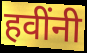
हवींनी